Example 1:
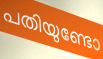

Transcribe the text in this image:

പതിയുണ്ടോ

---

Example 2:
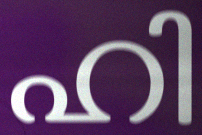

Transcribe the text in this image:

ഹി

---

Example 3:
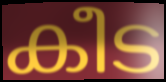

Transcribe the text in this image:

കീട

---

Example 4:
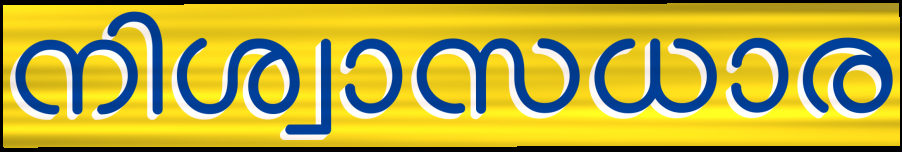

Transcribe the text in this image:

നിശ്വാസധാര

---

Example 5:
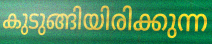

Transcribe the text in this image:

കുടുങ്ങിയിരിക്കുന്ന